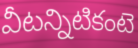
వీటన్నిటికంటె